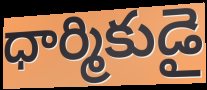
ధార్మికుడై